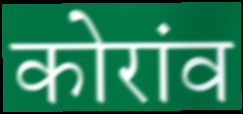
कोरांव